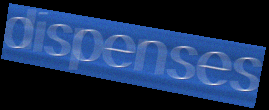
dispenses